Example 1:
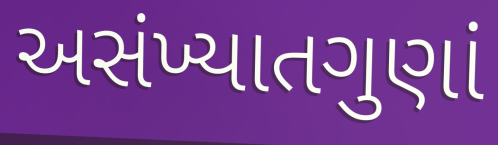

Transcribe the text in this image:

અસંખ્યાતગુણાં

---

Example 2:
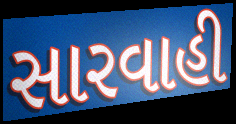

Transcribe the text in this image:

સારવાહી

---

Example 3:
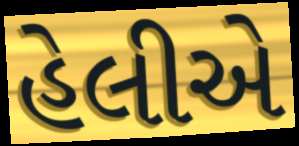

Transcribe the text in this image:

હેલીએ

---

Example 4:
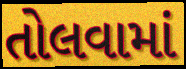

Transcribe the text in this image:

તોલવામાં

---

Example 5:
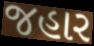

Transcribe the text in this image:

જહાર